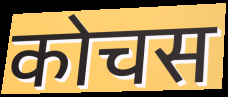
कोचस